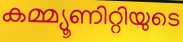
കമ്മ്യൂണിറ്റിയുടെ